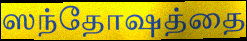
ஸந்தோஷத்தை